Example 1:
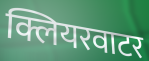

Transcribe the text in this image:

क्लियरवाटर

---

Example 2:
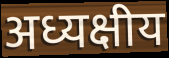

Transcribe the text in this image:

अध्यक्षीय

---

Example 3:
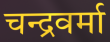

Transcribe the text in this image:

चन्द्रवर्मा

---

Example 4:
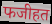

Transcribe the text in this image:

फजीहत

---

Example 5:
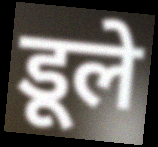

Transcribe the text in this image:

डूले